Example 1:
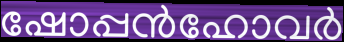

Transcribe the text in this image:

ഷോപ്പൻഹോവർ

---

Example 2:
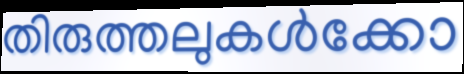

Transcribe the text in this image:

തിരുത്തലുകൾക്കോ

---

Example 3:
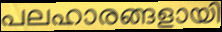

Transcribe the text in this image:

പലഹാരങ്ങളായി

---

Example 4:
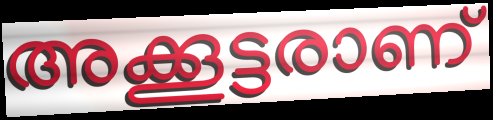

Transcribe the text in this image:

അക്കൂട്ടരാണ്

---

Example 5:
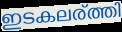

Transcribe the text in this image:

ഇടകലര്ത്തി